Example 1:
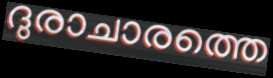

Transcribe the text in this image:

ദുരാചാരത്തെ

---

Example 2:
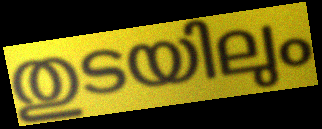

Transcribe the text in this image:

തുടയിലും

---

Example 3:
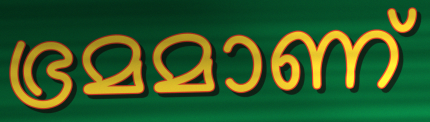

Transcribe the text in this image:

ഭ്രമമാണ്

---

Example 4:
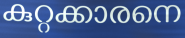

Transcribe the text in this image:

കുറ്റക്കാരനെ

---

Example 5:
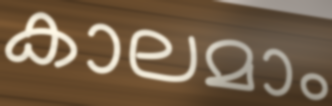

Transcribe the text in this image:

കാലമാം